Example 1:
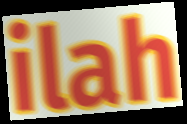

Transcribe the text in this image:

ilah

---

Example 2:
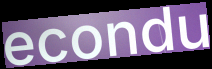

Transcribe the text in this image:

econdu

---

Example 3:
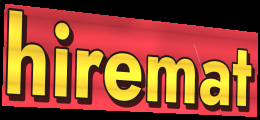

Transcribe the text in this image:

hiremat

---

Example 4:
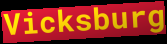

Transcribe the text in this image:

Vicksburg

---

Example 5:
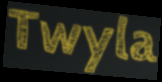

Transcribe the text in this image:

Twyla